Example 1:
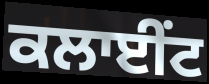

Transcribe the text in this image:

ਕਲਾਈਂਟ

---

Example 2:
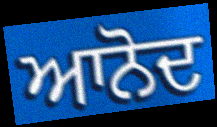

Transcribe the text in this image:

ਆਨੋਦ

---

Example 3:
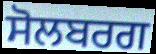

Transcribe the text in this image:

ਸੋਲਬਰਗ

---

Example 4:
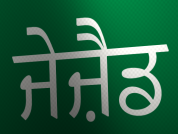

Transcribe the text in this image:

ਜੇਜ਼ੈਡ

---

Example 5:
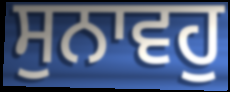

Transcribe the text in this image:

ਸੁਨਾਵਹੁ